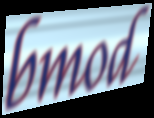
bmod